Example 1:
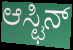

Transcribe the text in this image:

ಆಸ್ಟಿನ್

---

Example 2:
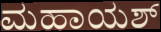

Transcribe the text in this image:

ಮಹಾಯಶ್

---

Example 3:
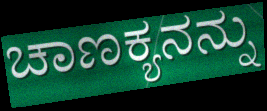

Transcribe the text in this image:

ಚಾಣಕ್ಯನನ್ನು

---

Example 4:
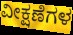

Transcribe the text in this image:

ವೀಕ್ಷಣೆಗಳ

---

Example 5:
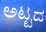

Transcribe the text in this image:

ಅಟ್ಟದ